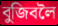
বুজিবলৈ